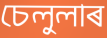
চেলুলাৰ